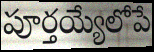
పూర్తయ్యేలోపే